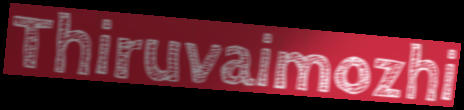
Thiruvaimozhi